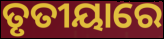
ତୃତୀୟାରେ